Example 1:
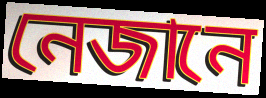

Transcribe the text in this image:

নেজানে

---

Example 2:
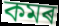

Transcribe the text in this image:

কমৰ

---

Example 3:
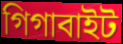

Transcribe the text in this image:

গিগাবাইট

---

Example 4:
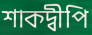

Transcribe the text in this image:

শাকদ্বীপি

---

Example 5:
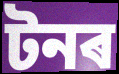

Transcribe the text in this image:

টনৰ